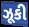
ઝૂકી